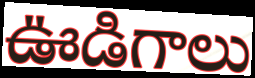
ఊడిగాలు